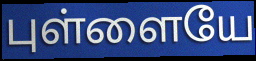
புள்ளையே